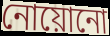
নোয়োনো